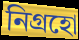
নিগ্রহো